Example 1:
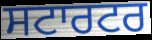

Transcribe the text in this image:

ਸਟਾਰਟਰ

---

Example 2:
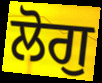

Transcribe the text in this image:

ਲੋਗੁ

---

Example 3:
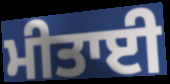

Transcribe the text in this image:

ਮੀਤਾਈ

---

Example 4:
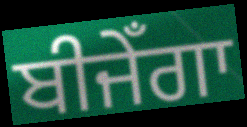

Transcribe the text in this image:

ਬੀਜੇਁਗਾ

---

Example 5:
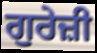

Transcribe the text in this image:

ਗੁਰੇਜ਼ੀ